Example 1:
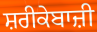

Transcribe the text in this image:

ਸ਼ਰੀਕੇਬਾਜ਼ੀ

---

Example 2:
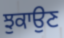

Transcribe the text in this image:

ਝੁਕਾਉਣ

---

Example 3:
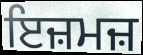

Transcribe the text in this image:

ਇਜ਼ਮਜ਼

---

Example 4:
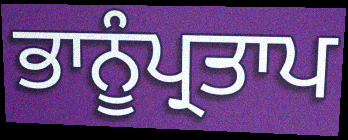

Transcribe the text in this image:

ਭਾਨੂੰਪ੍ਰਤਾਪ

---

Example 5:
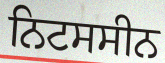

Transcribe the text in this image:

ਨਿਟਸਸੀਨ